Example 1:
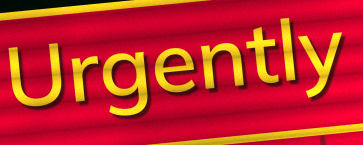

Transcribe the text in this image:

Urgently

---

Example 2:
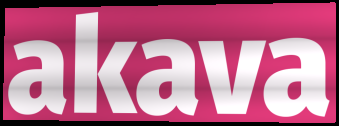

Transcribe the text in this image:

akava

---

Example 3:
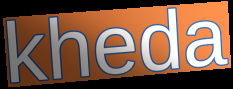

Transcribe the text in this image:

kheda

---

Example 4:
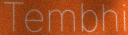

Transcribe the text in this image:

Tembhi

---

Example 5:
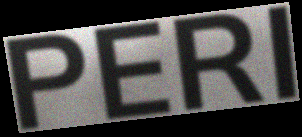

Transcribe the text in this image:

PERI